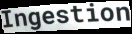
Ingestion